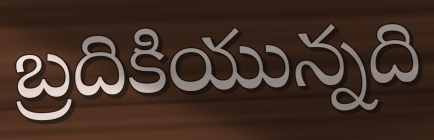
బ్రదికియున్నది